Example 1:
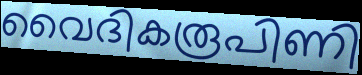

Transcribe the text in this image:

വൈദികരൂപിണി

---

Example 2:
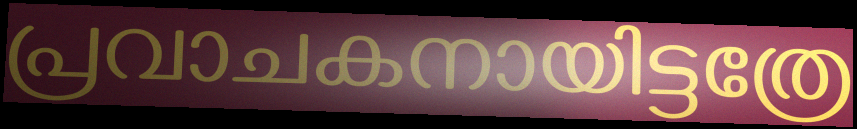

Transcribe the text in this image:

പ്രവാചകനായിട്ടത്രേ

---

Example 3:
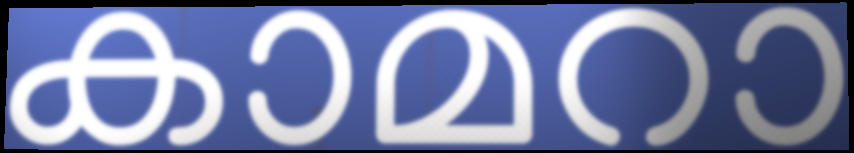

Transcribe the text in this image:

കാമറാ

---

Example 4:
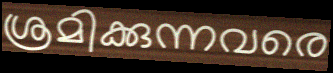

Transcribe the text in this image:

ശ്രമിക്കുന്നവരെ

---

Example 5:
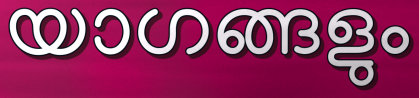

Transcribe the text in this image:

യാഗങ്ങളും